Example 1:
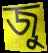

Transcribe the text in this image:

জু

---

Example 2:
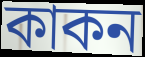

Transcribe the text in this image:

কাকন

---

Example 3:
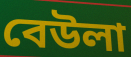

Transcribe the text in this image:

বেউলা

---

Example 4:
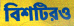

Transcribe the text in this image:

বিশটিরও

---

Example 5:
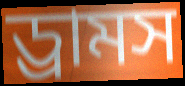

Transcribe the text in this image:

ড্রামস